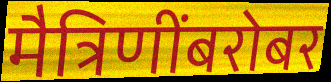
मैत्रिणींबरोबर